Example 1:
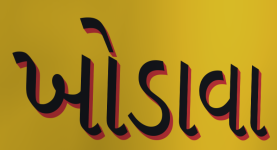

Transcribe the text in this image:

ખોડાવા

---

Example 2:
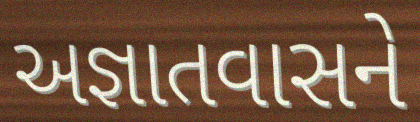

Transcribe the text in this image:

અજ્ઞાતવાસને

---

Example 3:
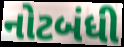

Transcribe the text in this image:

નોટબંધી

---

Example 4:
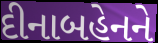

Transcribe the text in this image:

દીનાબહેનને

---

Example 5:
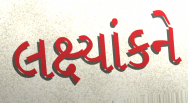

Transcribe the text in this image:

લક્ષ્યાંકને